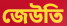
জেউতি